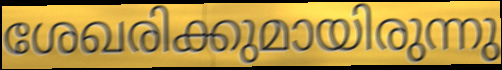
ശേഖരിക്കുമായിരുന്നു